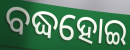
ବଦ୍ଧହୋଇ